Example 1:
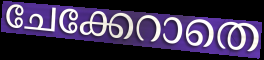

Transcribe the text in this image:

ചേക്കേറാതെ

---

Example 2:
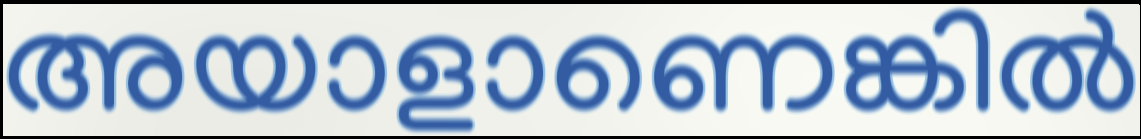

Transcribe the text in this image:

അയാളാണെങ്കിൽ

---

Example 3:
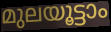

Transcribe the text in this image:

മുലയൂട്ടാം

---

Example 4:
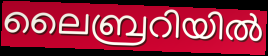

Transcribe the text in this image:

ലൈബ്രറിയിൽ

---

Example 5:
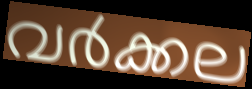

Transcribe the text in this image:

വർക്കല